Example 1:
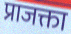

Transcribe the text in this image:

प्राजक्ता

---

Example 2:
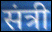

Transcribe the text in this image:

संत्री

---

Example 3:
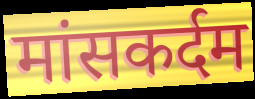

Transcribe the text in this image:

मांसकर्दम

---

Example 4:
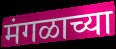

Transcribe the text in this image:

मंगळाच्या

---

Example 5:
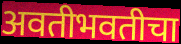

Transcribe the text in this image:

अवतीभवतीचा